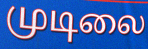
முடிலை